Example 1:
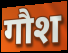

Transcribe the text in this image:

गौश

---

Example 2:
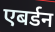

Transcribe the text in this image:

एबर्डन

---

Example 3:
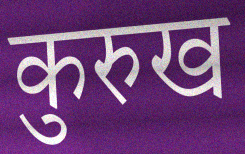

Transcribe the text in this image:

कुरुख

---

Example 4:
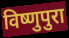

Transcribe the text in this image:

विष्णुपुरा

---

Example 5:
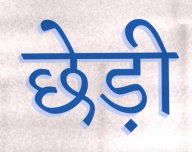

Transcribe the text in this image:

छेड़ी